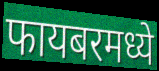
फायबरमध्ये